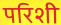
परिशी